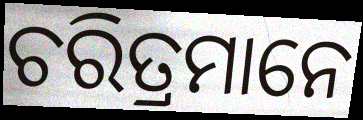
ଚରିତ୍ରମାନେ